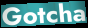
Gotcha